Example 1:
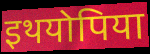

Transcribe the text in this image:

इथयोपिया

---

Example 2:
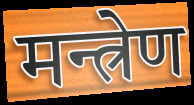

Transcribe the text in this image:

मन्त्रेण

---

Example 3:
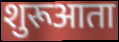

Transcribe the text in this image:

शुरूआता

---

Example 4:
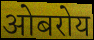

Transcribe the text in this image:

ओबरोय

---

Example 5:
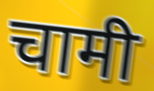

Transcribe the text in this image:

चामी